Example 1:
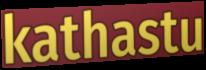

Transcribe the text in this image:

kathastu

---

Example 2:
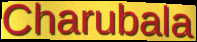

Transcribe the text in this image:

Charubala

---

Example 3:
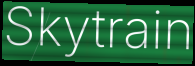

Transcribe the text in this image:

Skytrain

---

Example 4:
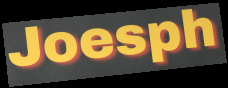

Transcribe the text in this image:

Joesph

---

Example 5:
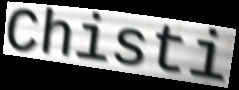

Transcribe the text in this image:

Chisti